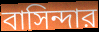
বাসিন্দার